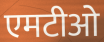
एमटीओ